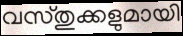
വസ്തുക്കളുമായി